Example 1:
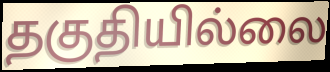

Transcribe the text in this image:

தகுதியில்லை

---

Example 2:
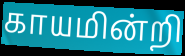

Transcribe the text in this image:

காயமின்றி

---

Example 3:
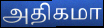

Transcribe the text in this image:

அதிகமா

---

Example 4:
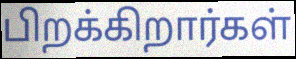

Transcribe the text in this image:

பிறக்கிறார்கள்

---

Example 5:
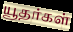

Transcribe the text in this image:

யூதர்கள்